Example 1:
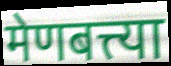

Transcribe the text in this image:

मेणबत्त्या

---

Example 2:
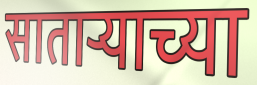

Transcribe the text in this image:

साताऱ्याच्या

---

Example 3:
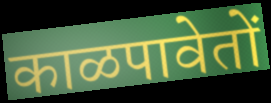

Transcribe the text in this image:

काळपावेतों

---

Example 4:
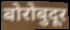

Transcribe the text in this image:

बोरोबुदूर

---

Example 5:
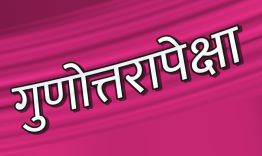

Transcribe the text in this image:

गुणोत्तरापेक्षा